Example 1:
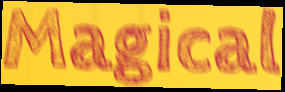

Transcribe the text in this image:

Magical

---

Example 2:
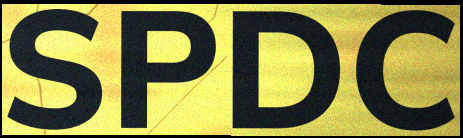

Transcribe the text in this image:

SPDC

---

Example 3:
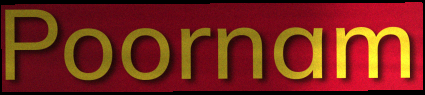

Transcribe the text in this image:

Poornam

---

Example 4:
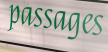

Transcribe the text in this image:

passages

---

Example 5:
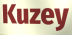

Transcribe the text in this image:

Kuzey